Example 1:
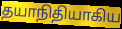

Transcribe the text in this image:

தயாநிதியாகிய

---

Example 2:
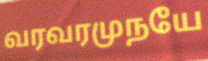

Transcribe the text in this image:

வரவரமுநயே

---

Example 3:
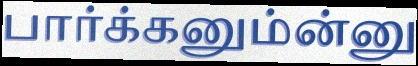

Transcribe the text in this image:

பார்க்கனும்ன்னு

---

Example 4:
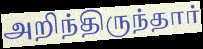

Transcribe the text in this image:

அறிந்திருந்தார்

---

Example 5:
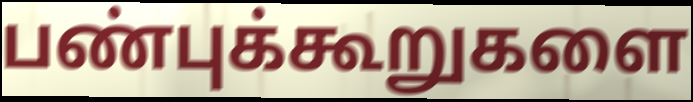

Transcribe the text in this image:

பண்புக்கூறுகளை